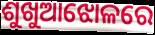
ଶୁଖୁଆଝୋଳରେ